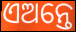
ଏଅନ୍ତେ